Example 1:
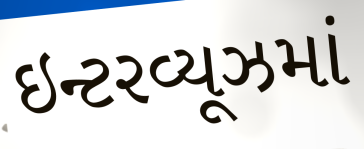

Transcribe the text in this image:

ઇન્ટરવ્યૂઝમાં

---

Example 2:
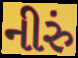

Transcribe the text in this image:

નીરું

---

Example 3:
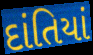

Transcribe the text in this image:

દાંતિયાં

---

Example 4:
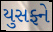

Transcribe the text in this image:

યુસફ્ને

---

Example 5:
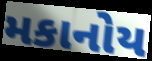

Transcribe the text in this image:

મકાનોય